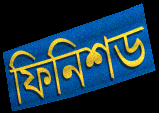
ফিনিশড